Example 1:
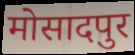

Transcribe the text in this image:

मोसादपुर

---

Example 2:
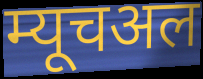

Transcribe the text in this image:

म्यूचअल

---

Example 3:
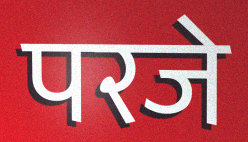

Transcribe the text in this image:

परजे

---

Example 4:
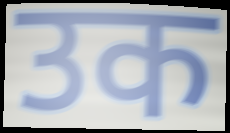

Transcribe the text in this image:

उक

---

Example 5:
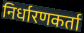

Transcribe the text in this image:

निर्धारणकर्ता